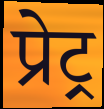
प्रेट्र